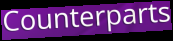
Counterparts